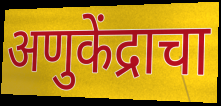
अणुकेंद्राचा